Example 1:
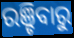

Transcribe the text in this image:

ରଞ୍ଚିବାରୁ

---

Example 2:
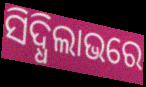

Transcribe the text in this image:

ସିଦ୍ଧିଲାଭରେ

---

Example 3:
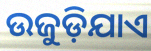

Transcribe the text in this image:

ଉଜୁଡ଼ିଯାଏ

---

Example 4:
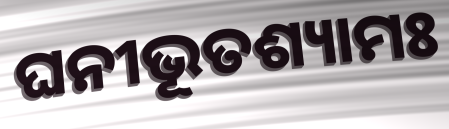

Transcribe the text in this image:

ଘନୀଭୂତଶ୍ୟାମଃ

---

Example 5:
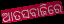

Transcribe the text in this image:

ଆତସବାଜିରେ